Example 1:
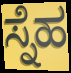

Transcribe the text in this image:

ಸ್ನೆಹ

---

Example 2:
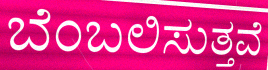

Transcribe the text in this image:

ಬೆಂಬಲಿಸುತ್ತವೆ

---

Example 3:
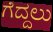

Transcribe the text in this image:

ಗೆದ್ದಲು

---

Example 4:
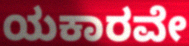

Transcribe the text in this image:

ಯಕಾರವೇ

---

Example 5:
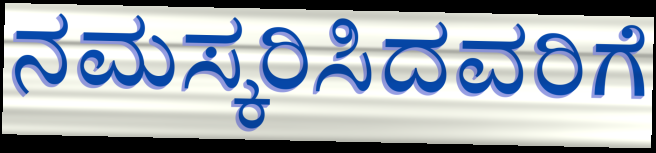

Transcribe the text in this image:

ನಮಸ್ಕರಿಸಿದವರಿಗೆ